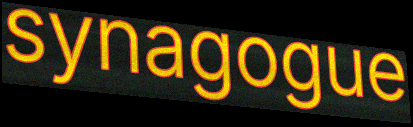
synagogue